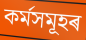
কৰ্মসমূহৰ